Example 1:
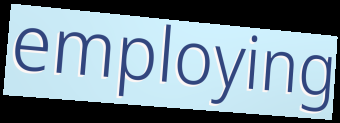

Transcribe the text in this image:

employing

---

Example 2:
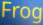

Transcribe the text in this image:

Frog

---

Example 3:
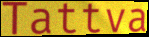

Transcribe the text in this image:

Tattva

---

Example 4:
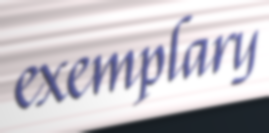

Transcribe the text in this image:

exemplary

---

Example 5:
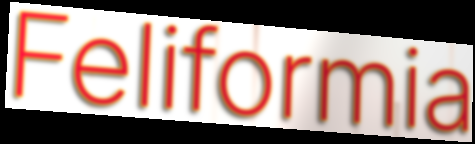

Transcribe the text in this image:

Feliformia